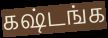
கஷ்டங்க